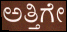
ಅತ್ತಿಗೇ